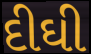
દીઘી